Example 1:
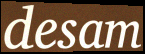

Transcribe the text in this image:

desam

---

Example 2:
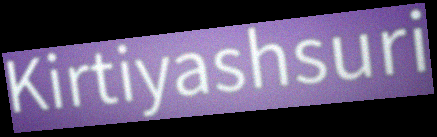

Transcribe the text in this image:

Kirtiyashsuri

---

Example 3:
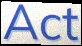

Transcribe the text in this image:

Act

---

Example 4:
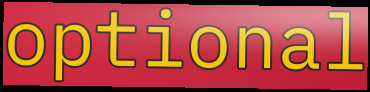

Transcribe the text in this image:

optional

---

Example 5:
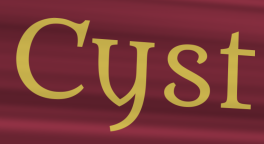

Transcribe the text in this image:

Cyst